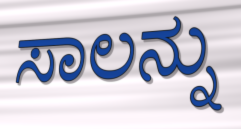
ಸಾಲನ್ನು